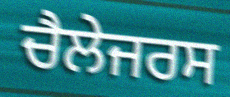
ਚੈਲੇਜਰਸ